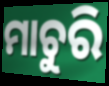
ମାଚୁରି